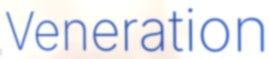
Veneration